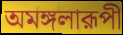
অমঙ্গলারূপী